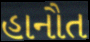
હાનૌત